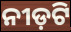
ନୀଡ଼ଟି